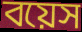
বয়েস